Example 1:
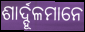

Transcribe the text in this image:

ଶାର୍ଦ୍ଦୂଳମାନେ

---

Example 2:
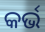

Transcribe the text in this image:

କର୍ଭ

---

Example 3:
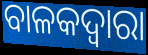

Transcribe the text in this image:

ବାଳକଦ୍ୱାରା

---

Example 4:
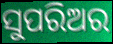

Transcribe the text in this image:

ସୁପରିଅର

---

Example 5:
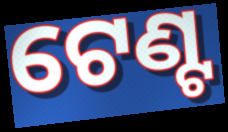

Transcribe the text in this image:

ଟେଣ୍ଟ